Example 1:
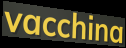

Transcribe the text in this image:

vacchina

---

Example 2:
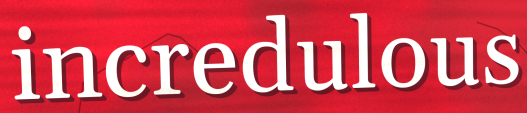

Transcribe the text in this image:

incredulous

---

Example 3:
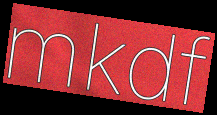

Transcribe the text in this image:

mkdf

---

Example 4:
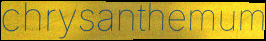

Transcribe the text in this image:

chrysanthemum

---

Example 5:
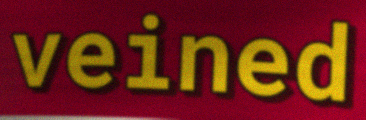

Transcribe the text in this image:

veined